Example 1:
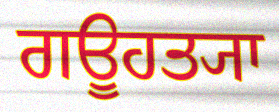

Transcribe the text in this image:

ਗਊਹਤ੍ਯਾ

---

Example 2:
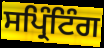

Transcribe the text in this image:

ਸਪ੍ਰਿੰਟਿੰਗ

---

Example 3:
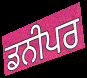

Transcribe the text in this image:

ਡਨੀਪਰ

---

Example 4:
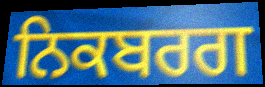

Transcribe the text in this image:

ਨਿਕਬਰਗ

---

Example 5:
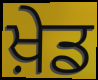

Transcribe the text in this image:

ਖ਼ੇਡ